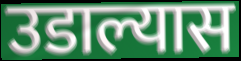
उडाल्यास